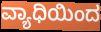
ವ್ಯಾಧಿಯಿಂದ